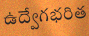
ఉద్వేగభరిత